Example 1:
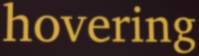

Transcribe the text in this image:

hovering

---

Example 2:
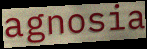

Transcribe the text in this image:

agnosia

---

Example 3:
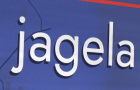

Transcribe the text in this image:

jagela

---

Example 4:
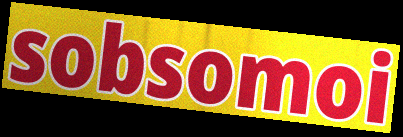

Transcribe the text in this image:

sobsomoi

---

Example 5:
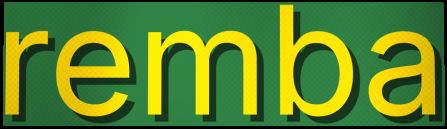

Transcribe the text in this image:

remba